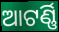
ଆଟର୍ଣ୍ଣି